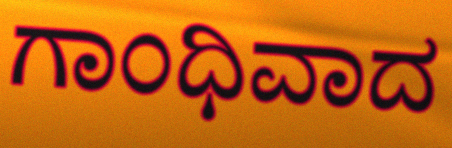
ಗಾಂಧಿವಾದ